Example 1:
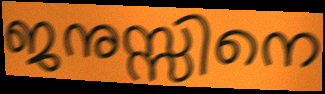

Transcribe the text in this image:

ജനുസ്സിനെ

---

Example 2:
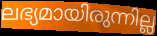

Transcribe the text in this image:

ലഭ്യമായിരുന്നില്ല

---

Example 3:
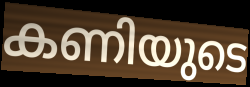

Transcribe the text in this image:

കണിയുടെ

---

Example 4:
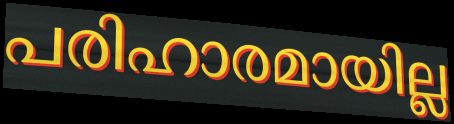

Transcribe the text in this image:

പരിഹാരമായില്ല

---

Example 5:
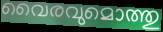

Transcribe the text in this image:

വൈരവുമൊത്തു